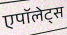
एपॉलेट्स